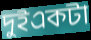
দুইএকটা